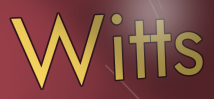
Witts